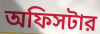
অফিসটার